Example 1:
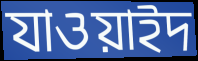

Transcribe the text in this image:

যাওয়াইদ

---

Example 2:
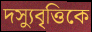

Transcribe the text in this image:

দস্যুবৃত্তিকে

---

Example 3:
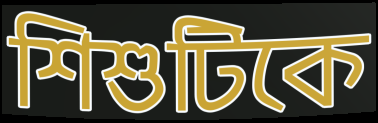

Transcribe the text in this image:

শিশুটিকে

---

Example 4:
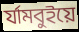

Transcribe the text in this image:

র্যামবুইয়ে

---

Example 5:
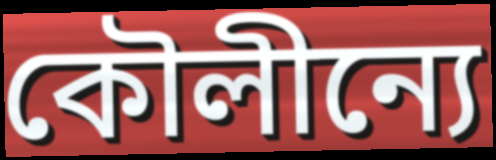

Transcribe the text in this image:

কৌলীন্যে